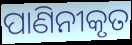
ପାଣିନୀକୃତ